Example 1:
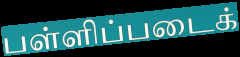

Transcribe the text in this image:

பள்ளிப்படைக்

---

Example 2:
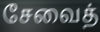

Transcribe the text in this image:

சேவைத்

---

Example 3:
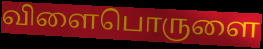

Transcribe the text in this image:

விளைபொருளை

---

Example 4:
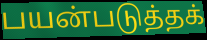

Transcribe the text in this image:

பயன்படுத்தக்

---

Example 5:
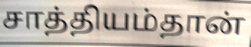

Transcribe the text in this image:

சாத்தியம்தான்